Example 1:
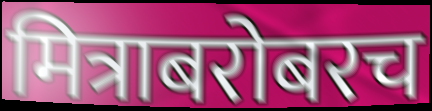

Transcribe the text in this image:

मित्राबरोबरच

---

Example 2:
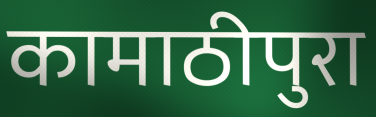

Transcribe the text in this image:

कामाठीपुरा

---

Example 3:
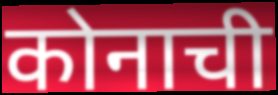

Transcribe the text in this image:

कोनाची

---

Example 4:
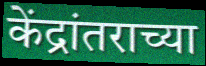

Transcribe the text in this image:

केंद्रांतराच्या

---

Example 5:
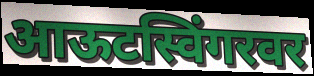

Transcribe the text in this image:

आऊटस्विंगरवर